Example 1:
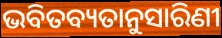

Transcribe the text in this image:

ଭବିତବ୍ୟତାନୁସାରିଣୀ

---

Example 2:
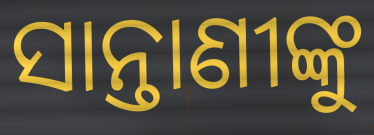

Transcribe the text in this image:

ସାନ୍ତାଣୀଙ୍କୁ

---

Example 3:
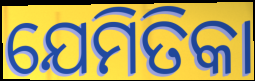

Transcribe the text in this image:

ଯେମିତିକା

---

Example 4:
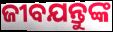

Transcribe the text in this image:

ଜୀବଯନ୍ତୁଙ୍କ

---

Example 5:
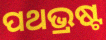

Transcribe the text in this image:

ପଥଭ୍ରଷ୍ଟ